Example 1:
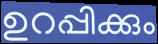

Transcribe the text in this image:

ഉറപ്പിക്കും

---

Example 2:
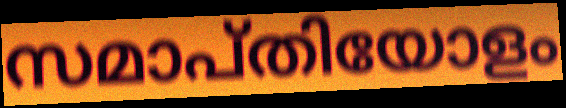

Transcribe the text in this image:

സമാപ്തിയോളം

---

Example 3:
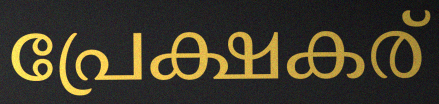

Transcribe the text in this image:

പ്രേക്ഷകര്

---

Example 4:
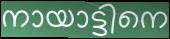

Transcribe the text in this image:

നായാട്ടിനെ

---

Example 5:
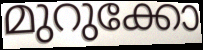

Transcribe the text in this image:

മുറുക്കോ